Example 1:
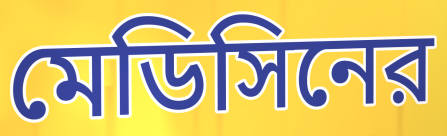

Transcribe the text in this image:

মেডিসিনের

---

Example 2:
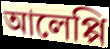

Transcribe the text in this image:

আলেপ্পি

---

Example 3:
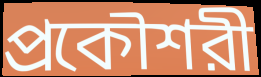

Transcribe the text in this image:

প্রকৌশরী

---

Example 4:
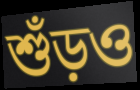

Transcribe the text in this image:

শুঁড়ও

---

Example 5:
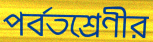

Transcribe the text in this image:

পর্বতশ্রেণীর